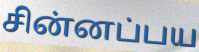
சின்னப்பய